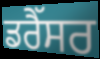
ਡਰੈੱਸਰ